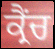
ਕ੍ਰੈਂਚ